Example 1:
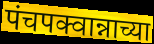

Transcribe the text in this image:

पंचपक्वान्नाच्या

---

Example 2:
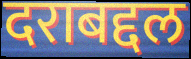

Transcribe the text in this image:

दराबद्दल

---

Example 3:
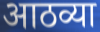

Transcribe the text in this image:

आठव्या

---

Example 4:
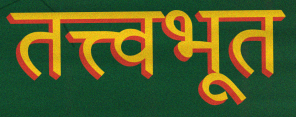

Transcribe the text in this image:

तत्त्वभूत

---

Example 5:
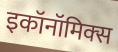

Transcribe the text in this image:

इकॉनॉमिक्‍स